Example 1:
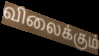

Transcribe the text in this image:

விலைக்கும்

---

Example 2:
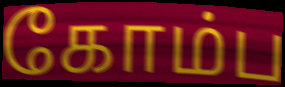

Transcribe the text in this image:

கோம்ப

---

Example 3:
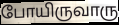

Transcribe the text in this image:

போயிருவாரு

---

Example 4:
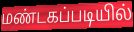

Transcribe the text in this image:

மண்டகப்படியில்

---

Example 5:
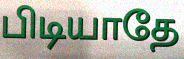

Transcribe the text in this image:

பிடியாதே